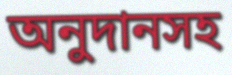
অনুদানসহ